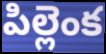
పిల్లెంక